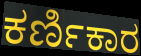
ಕರ್ಣಿಕಾರ